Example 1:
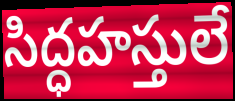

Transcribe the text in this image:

సిద్ధహస్తులే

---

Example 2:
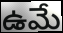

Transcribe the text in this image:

ఉమే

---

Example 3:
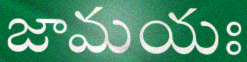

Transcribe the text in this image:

జామయః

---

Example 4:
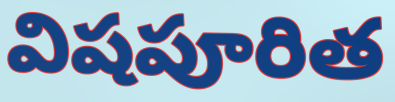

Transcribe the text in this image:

విషపూరిత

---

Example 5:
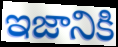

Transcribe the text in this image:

ఇజానికి